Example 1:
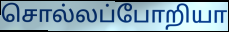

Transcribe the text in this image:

சொல்லப்போறியா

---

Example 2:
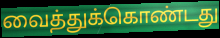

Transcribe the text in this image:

வைத்துக்கொண்டது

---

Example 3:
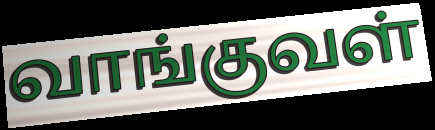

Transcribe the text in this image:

வாங்குவள்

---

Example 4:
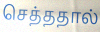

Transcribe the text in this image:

செத்ததால்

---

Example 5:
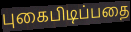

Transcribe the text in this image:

புகைபிடிப்பதை